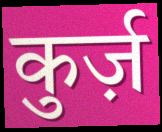
कुर्ज़